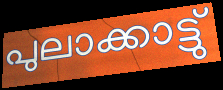
പുലാക്കാട്ടു്